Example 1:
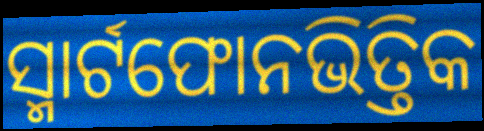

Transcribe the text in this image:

ସ୍ମାର୍ଟଫୋନଭିତ୍ତିକ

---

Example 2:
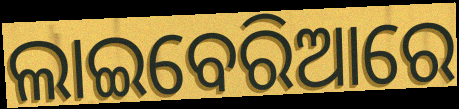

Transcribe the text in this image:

ଲାଇବେରିଆରେ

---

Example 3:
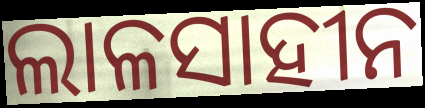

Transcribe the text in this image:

ଲାଳସାହୀନ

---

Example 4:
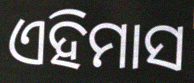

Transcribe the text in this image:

ଏହିମାସ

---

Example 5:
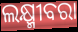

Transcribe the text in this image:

ଲକ୍ଷ୍ମୀବରା